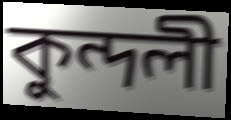
কুন্দলী